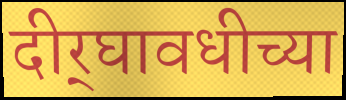
दीर्घावधीच्या